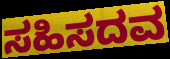
ಸಹಿಸದವ